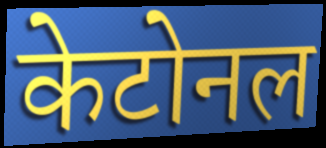
केटोनल